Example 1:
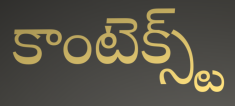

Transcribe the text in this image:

కాంటెక్స్ట్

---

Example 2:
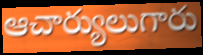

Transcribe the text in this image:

ఆచార్యులుగారు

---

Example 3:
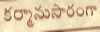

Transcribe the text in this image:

కర్మానుసారంగా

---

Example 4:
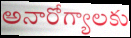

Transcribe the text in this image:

అనారోగ్యాలకు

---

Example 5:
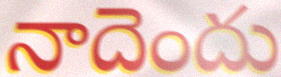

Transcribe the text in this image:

నాదెందు